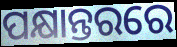
ପକ୍ଷାନ୍ତରରେ